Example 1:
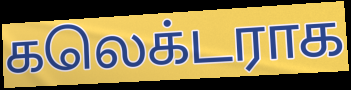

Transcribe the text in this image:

கலெக்டராக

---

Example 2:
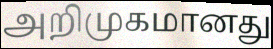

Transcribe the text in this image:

அறிமுகமானது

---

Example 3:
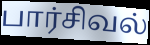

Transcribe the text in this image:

பார்சிவல்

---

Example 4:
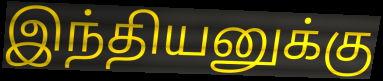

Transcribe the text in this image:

இந்தியனுக்கு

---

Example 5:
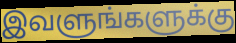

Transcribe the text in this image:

இவளுங்களுக்கு